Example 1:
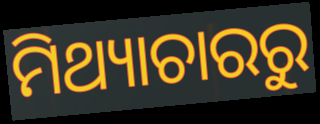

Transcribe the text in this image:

ମିଥ୍ୟାଚାରରୁ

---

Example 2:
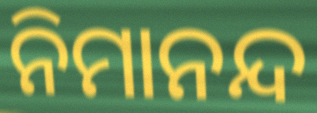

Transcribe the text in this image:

ନିମାନନ୍ଦ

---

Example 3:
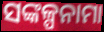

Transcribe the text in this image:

ସଙ୍କଳ୍ପନାମା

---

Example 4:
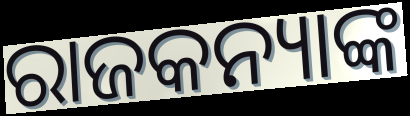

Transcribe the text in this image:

ରାଜକନ୍ୟାଙ୍କ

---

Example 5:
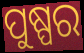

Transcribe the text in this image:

ପୁଷ୍ପର